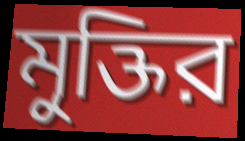
মুক্তির